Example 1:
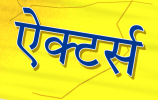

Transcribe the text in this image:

ऐक्‍टर्स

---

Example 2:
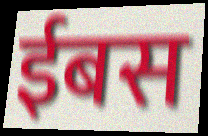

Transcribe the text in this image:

ईबस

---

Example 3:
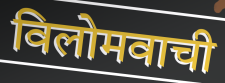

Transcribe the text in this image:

विलोमवाची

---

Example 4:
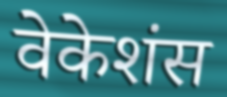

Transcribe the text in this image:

वेकेशंस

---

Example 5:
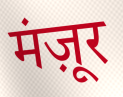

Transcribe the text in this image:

मंज़ूर